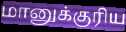
மானுக்குரிய